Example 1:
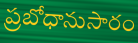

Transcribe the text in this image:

ప్రబోధానుసారం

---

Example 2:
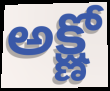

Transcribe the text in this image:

అక్ష్ణో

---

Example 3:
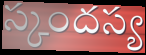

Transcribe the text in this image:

స్కందస్య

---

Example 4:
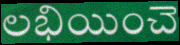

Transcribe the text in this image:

లభియించె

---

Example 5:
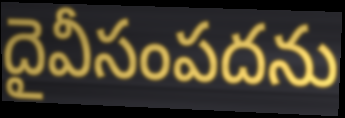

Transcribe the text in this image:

దైవీసంపదను